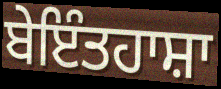
ਬੇਇੰਤਹਾਸ਼ਾ